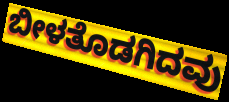
ಬೀಳತೊಡಗಿದವು